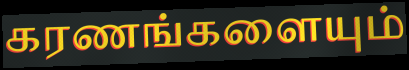
கரணங்களையும்